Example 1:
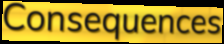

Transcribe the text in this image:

Consequences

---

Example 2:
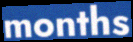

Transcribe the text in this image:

months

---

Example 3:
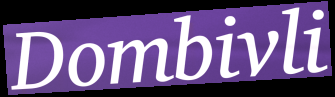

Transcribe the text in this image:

Dombivli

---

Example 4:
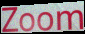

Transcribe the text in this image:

Zoom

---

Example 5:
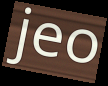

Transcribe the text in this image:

jeo